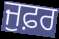
ਜੁਫ਼ਰ